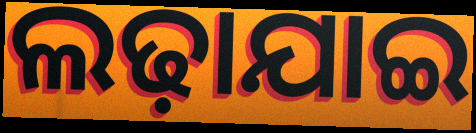
ଲଢ଼ାଯାଇ